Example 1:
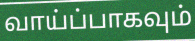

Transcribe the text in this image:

வாய்ப்பாகவும்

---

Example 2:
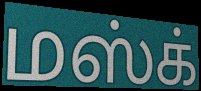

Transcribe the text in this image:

மஸ்க்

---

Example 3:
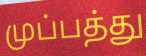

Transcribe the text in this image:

முப்பத்து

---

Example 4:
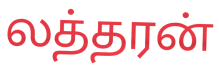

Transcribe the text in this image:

லத்தரன்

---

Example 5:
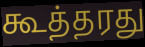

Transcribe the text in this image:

கூத்தரது